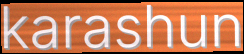
karashun